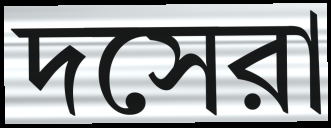
দসেরা